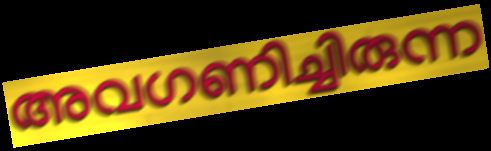
അവഗണിച്ചിരുന്ന